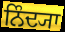
ਨਿੰਦ੍ਯਾ